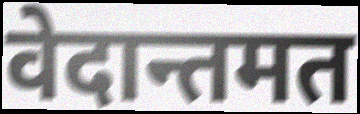
वेदान्तमत